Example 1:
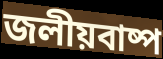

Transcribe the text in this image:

জলীয়বাষ্প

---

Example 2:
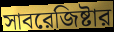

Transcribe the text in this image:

সাবরেজিষ্টার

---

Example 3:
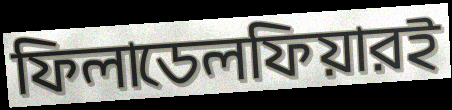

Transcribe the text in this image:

ফিলাডেলফিয়ারই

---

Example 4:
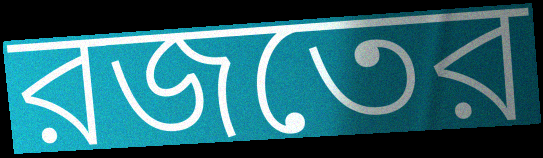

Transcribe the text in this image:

রজতের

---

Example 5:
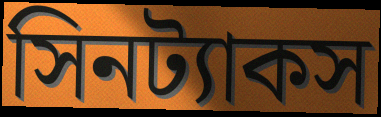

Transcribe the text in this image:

সিনট্যাকস